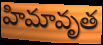
హిమావృత